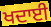
ਖਦਾਈ